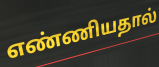
எண்ணியதால்